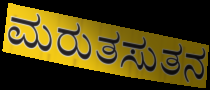
ಮರುತಸುತನ